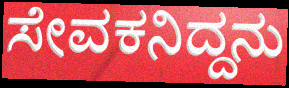
ಸೇವಕನಿದ್ದನು